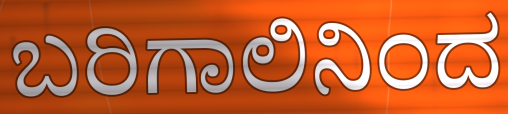
ಬರಿಗಾಲಿನಿಂದ